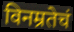
विनम्रतेचं